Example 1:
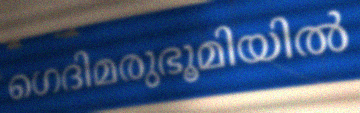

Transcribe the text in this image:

ഗെദിമരുഭൂമിയിൽ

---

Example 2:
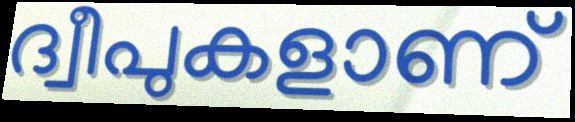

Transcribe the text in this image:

ദ്വീപുകളാണ്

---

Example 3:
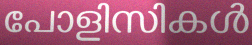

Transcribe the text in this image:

പോളിസികൾ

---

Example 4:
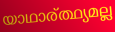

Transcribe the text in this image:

യാഥാര്ത്ഥ്യമല്ല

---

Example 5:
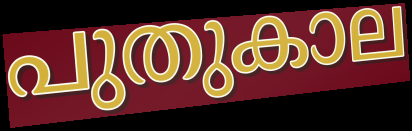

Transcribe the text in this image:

പുതുകാല